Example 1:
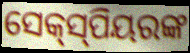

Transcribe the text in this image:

ସେକ୍‌ସ୍‌ପିୟରଙ୍କ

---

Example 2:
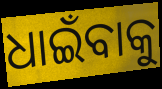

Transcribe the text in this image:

ଧାଇଁବାକୁ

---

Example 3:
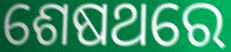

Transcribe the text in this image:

ଶେଷଥରେ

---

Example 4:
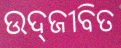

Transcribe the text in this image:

ଉଦ୍‌ଜୀବିତ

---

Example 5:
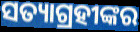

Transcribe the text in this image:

ସତ୍ୟାଗ୍ରହୀଙ୍କର